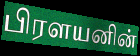
பிரளயனின்